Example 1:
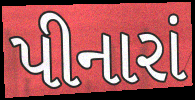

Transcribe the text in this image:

પીનારાં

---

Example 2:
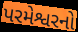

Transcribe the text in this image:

પરમેશ્વરનો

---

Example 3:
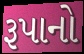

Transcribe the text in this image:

રૂપાનો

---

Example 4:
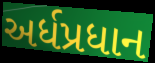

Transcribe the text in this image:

અર્ધપ્રધાન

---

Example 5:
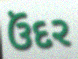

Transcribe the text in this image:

ઉંદર